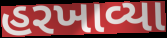
હરખાવ્યા